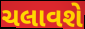
ચલાવશે